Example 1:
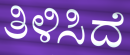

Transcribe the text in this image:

ತಿಳಿಸಿದೆ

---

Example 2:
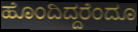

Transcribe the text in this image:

ಹೊಂದಿದ್ದರೆಂದೂ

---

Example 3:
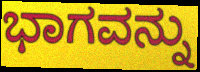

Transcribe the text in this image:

ಭಾಗವನ್ನು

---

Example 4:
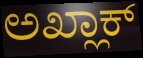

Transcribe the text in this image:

ಅಖ್ಲಾಕ್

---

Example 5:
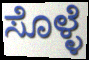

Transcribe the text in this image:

ಸೊಳ್ಳೆ